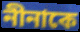
নীনাকে